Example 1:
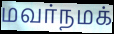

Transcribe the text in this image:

மவர்நமக்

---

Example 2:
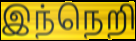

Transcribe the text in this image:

இந்நெறி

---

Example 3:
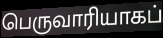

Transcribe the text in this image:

பெருவாரியாகப்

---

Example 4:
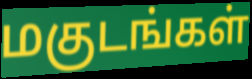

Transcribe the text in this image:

மகுடங்கள்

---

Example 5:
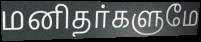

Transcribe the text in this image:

மனிதர்களுமே